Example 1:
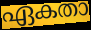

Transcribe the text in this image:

ഏകതാ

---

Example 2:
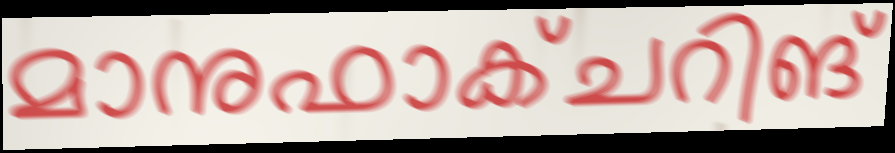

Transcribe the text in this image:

മാനുഫാക്ചറിങ്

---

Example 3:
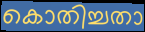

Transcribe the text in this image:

കൊതിച്ചതാ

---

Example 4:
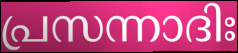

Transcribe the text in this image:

പ്രസന്നാദിഃ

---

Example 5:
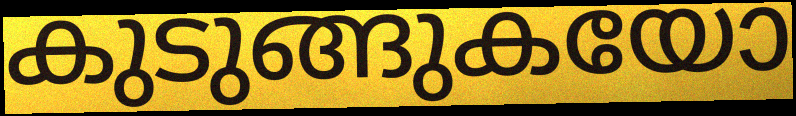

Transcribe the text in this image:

കുടുങ്ങുകയോ